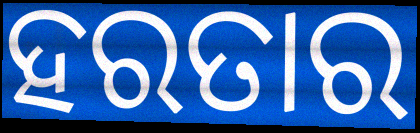
ହରତାର